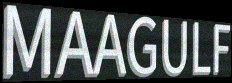
MAAGULF